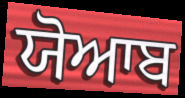
ਯੋਆਬ